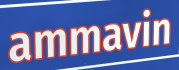
ammavin